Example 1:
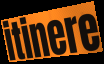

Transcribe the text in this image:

itinere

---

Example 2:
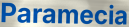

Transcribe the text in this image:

Paramecia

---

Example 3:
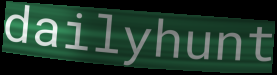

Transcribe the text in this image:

dailyhunt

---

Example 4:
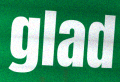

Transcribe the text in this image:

glad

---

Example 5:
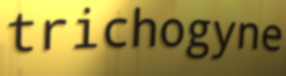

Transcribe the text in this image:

trichogyne